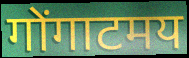
गोंगाटमय